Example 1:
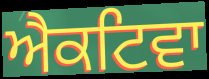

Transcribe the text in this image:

ਐਕਟਿਵਾ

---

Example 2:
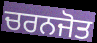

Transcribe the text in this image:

ਚਰਨਜੋਤ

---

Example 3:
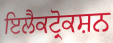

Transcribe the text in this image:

ਇਲੈਕਟ੍ਰੋਕਸ਼ਨ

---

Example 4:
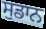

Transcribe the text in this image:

ਸੁਡਾਨ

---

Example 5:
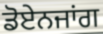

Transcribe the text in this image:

ਡੋਏਨਜਾਂਗ